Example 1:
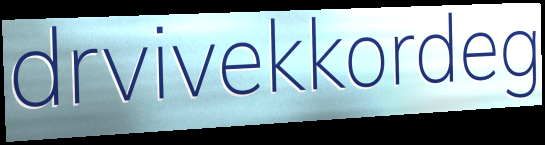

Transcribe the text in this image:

drvivekkordeg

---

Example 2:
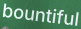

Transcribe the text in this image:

bountiful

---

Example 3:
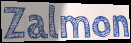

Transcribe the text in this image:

Zalmon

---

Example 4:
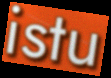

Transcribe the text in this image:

istu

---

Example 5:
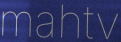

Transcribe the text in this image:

mahtv